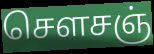
செளசஞ்